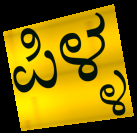
ಪಿಳ್ಳ